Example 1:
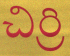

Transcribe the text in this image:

చిర్రి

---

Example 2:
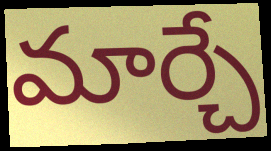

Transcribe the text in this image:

మార్చే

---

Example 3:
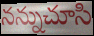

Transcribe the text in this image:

నన్నుచూసి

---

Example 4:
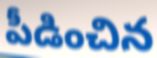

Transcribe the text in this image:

పీడించిన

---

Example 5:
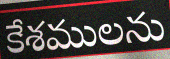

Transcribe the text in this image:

కేశములను